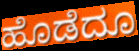
ಹೊಡೆದೂ